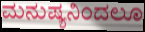
ಮನುಷ್ಯನಿಂದಲೂ